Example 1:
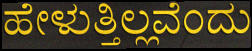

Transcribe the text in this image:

ಹೇಳುತ್ತಿಲ್ಲವೆಂದು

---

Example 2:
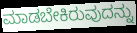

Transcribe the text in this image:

ಮಾಡಬೇಕಿರುವುದನ್ನು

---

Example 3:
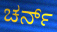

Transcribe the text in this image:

ಚರ್ನ್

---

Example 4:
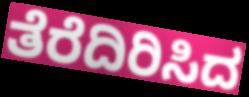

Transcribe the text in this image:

ತೆರೆದಿರಿಸಿದ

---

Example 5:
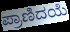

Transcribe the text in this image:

ಪ್ರಾಣಿದಯೆ